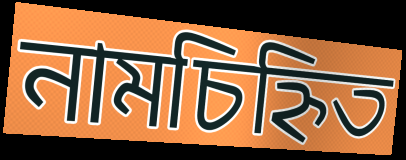
নামচিহ্নিত